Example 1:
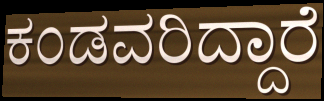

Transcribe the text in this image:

ಕಂಡವರಿದ್ದಾರೆ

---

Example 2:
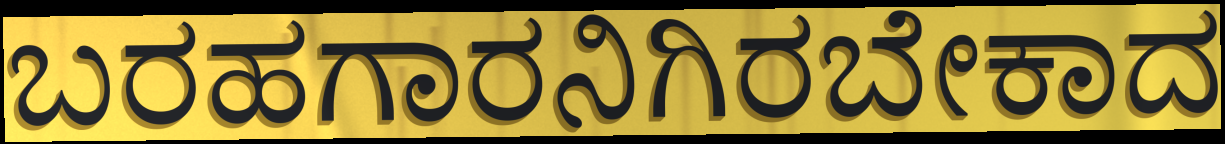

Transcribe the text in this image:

ಬರಹಗಾರನಿಗಿರಬೇಕಾದ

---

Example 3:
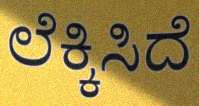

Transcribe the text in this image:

ಲೆಕ್ಕಿಸಿದೆ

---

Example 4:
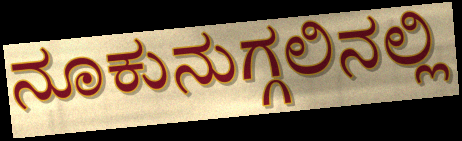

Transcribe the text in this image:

ನೂಕುನುಗ್ಗಲಿನಲ್ಲಿ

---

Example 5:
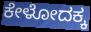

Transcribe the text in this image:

ಕೇಳೋದಕ್ಕ